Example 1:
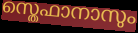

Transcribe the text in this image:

സ്തെഫാനാസും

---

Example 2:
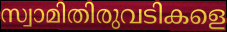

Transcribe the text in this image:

സ്വാമിതിരുവടികളെ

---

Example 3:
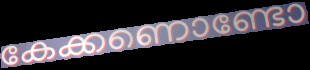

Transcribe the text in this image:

കേക്കണൊണ്ടോ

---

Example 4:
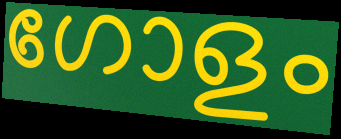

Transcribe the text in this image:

ഗോളം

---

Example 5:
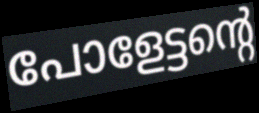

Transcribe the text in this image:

പോളേട്ടന്റെ